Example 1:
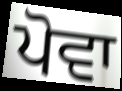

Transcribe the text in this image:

ਪੋਵਾ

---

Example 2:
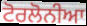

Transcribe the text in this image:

ਟੋਰਲੋਨੀਆ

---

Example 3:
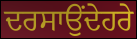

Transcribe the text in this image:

ਦਰਸਾਉਂਦੇਹਰੇ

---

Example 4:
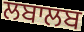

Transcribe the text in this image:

ਲਬਾਲਬ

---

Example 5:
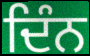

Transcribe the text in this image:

ਦਿੰਨ